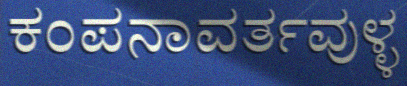
ಕಂಪನಾವರ್ತವುಳ್ಳ